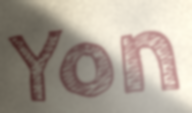
Yon